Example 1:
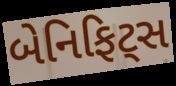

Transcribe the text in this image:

બેનિફિટ્સ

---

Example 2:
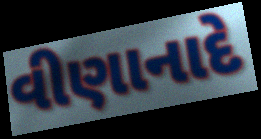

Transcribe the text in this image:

વીણાનાદે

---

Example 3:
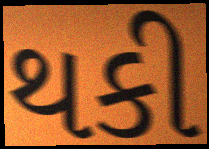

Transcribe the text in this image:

થકી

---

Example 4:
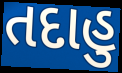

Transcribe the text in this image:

તદાહુ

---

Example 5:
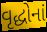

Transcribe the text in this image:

વૃદ્ધોનાં